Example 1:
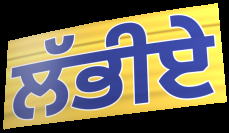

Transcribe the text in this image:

ਲੱਭੀਏ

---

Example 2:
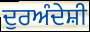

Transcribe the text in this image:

ਦੁਰਅੰਦੇਸ਼ੀ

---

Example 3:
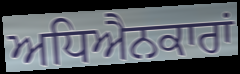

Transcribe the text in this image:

ਅਧਿਐਨਕਾਰਾਂ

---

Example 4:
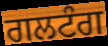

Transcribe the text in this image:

ਗਲਟੰਗ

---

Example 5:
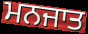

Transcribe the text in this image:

ਮਨਜਾਤ